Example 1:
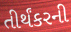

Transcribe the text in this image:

તીર્થંકરની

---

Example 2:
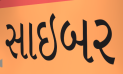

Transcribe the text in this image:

સાઇબર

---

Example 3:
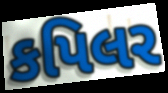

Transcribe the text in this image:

કપિલર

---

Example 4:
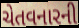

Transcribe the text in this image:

ચેતવનારની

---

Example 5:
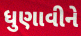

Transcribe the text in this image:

ધુણાવીને